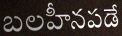
బలహీనపడే